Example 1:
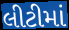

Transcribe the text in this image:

લીટીમાં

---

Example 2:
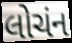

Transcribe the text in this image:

લોચંન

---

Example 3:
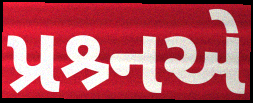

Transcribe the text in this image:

પ્રશ્ર્નએ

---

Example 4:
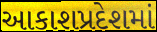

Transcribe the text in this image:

આકાશપ્રદેશમાં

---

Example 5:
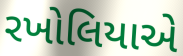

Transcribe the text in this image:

રખોલિયાએ